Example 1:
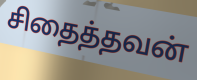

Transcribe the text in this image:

சிதைத்தவன்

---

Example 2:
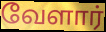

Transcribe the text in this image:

வேளார்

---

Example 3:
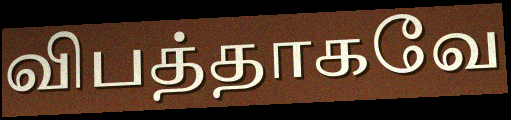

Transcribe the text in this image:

விபத்தாகவே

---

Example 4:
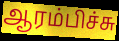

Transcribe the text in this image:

ஆரம்பிச்சு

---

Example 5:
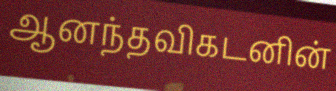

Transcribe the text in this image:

ஆனந்தவிகடனின்